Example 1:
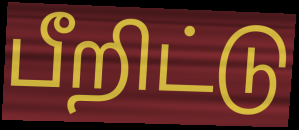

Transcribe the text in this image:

பீறிட்டு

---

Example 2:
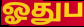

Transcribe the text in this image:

ஓதுப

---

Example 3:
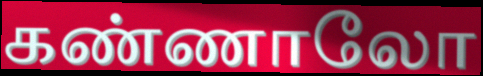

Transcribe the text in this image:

கண்ணாலோ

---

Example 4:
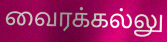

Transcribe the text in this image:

வைரக்கல்லு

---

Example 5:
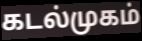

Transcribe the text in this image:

கடல்முகம்